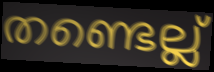
തണ്ടെല്ല്